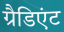
ग्रैडिएंट